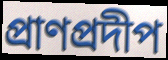
প্রাণপ্রদীপ